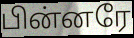
பின்னரே